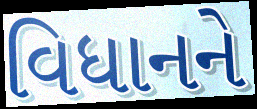
વિધાનને